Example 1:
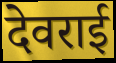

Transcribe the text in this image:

देवराई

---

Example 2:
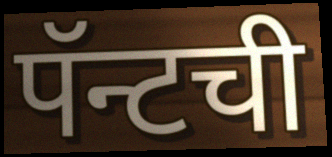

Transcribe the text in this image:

पॅन्टची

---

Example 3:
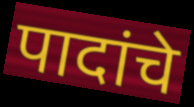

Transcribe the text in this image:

पादांचे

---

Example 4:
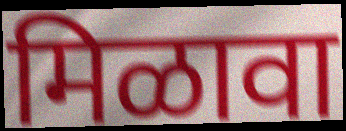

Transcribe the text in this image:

मिळावा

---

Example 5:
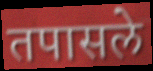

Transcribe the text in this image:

तपासले